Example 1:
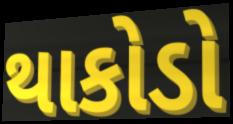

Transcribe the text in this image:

થાકોડો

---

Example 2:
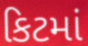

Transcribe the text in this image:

કિટમાં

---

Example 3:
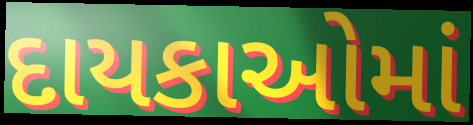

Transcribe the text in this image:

દાયકાઓમાં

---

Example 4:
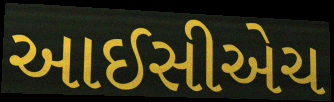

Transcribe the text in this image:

આઈસીએચ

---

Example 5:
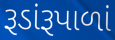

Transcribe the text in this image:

રૂડાંરૂપાળાં